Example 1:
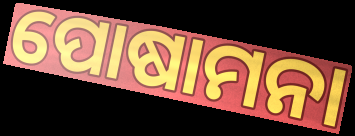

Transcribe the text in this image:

ପୋଷାମନା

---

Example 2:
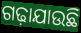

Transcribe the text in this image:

ଗଢ଼ାଯାଉଛି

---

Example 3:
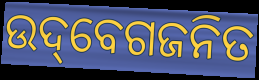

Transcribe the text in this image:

ଉଦ୍‌ବେଗଜନିତ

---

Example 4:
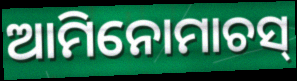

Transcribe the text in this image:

ଆମିନୋମାଚସ୍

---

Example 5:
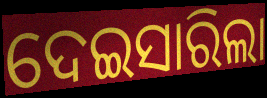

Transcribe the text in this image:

ଦେଇସାରିଲା